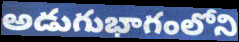
అడుగుభాగంలోని